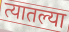
त्यातल्या